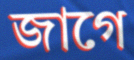
জাগে